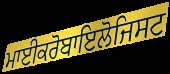
ਮਾਈਕਰੋਬਾਇਲੋਜਿਸਟ